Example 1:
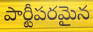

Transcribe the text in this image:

పార్టీపరమైన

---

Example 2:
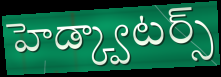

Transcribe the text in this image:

హెడ్క్వాటర్స్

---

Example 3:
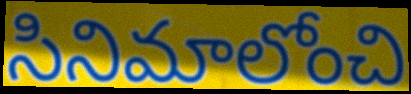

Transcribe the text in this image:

సినిమాలోంచి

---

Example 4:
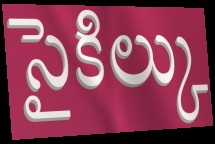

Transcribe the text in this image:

సైకిల్కు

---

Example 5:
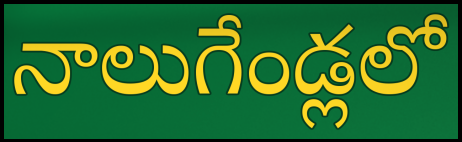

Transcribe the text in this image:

నాలుగేండ్లలో